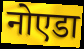
नोएडा